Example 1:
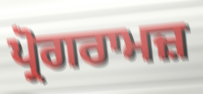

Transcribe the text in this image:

ਪ੍ਰੋਗਰਾਮਜ਼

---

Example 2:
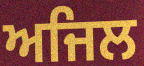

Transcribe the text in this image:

ਅਜਿਲ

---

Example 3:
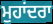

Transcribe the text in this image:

ਮੁਹਾਂਦਰਾ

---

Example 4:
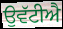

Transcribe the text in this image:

ਉਵੱਟੀਐ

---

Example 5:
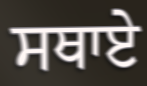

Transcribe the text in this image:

ਸਥਾਏ